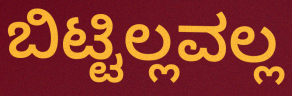
ಬಿಟ್ಟಿಲ್ಲವಲ್ಲ